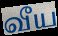
வீய